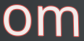
om